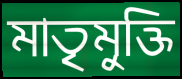
মাতৃমুক্তি